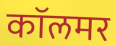
कॉलमर